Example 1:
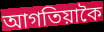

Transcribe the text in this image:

আগতিয়াকৈ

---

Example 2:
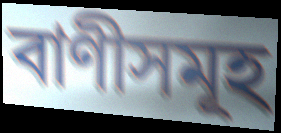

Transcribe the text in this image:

বাণীসমূহ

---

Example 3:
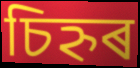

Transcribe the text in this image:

চিহ্নৰ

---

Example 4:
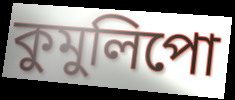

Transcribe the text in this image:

কুমুলিপো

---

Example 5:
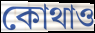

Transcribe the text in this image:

কোথাও